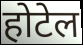
होटेल